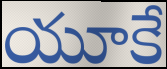
యూకే